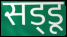
सड्‌डू